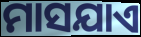
ମାସଯାଏ